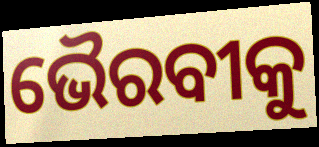
ଭୈରବୀକୁ